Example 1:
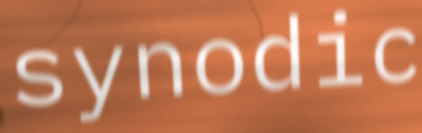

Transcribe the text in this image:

synodic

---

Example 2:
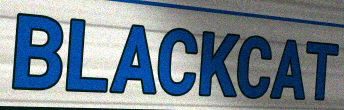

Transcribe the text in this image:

BLACKCAT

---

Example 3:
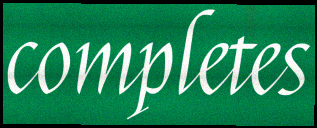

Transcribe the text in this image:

completes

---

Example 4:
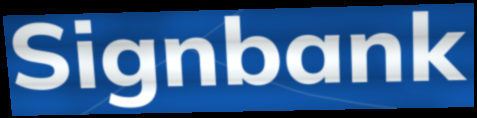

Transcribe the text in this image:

Signbank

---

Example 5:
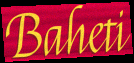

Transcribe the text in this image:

Baheti